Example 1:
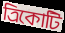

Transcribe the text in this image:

ত্রিকোটি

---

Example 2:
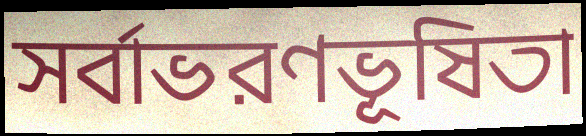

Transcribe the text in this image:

সর্বাভরণভূষিতা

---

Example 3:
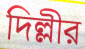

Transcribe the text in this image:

দিল্লীর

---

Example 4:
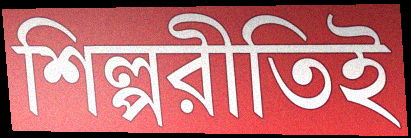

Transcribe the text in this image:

শিল্পরীতিই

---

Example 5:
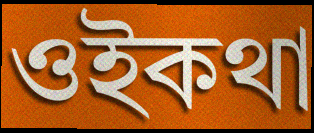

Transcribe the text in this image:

ওইকথা